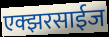
एक्झरसाईज